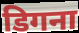
डिगना